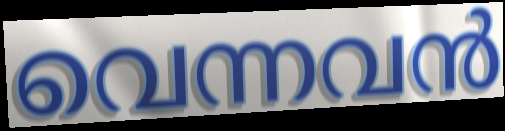
വെന്നവൻ